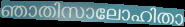
ഞാതിസാലോഹിതാ